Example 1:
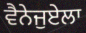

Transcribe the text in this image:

ਵੈਨੇਜੁਏਲਾ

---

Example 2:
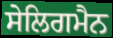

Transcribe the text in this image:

ਸੇਲਿਗਮੈਨ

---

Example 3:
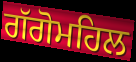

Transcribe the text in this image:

ਗੱਗੋਮਹਿਲ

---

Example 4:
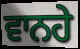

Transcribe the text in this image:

ਵਾਨਹੇ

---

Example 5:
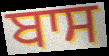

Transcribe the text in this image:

ਬਾਸ